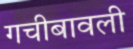
गचीबावली